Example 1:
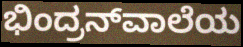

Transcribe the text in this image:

ಭಿಂದ್ರನ್‌ವಾಲೆಯ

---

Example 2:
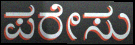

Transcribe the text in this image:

ಪರೇಸು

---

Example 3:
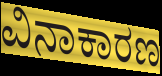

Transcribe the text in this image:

ವಿನಾಕಾರಣ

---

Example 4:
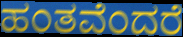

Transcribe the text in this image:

ಹಂತವೆಂದರೆ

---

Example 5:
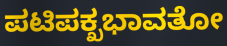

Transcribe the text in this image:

ಪಟಿಪಕ್ಖಭಾವತೋ